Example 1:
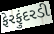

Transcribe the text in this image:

ફેરફુંદરડી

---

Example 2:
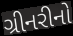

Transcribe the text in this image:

ગ્રીનરીનો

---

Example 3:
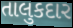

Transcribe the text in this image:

તાલુકદાર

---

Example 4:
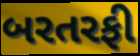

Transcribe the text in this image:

બરતરફી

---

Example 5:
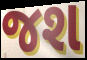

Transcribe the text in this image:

જશ